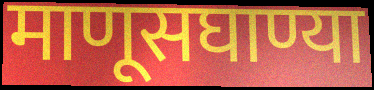
माणूसघाण्या